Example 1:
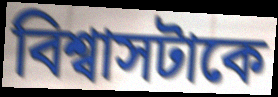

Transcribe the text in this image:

বিশ্বাসটাকে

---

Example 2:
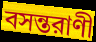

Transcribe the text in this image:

বসন্তরাণী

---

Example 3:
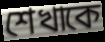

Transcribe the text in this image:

শেখাকে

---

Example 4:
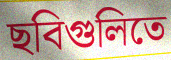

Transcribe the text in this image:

ছবিগুলিতে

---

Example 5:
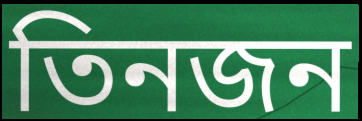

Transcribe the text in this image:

তিনজন